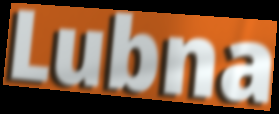
Lubna